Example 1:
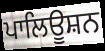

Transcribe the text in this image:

ਪਾਲਿਊਸ਼ਨ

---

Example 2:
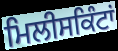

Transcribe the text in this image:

ਮਿਲੀਸਕਿੰਟਾਂ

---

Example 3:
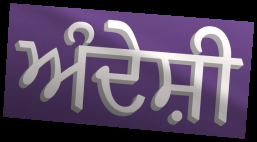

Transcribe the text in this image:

ਅੰਦੇਸ਼ੀ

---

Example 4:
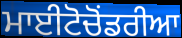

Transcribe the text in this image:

ਮਾਈਟੋਚੋਂਡਰੀਆ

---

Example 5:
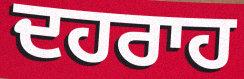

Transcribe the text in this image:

ਦਹਰਾਹ